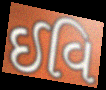
ઈવિ